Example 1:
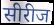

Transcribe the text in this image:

सीरीज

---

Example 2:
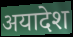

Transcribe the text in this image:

अयादेश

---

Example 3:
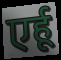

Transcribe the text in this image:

एर्हू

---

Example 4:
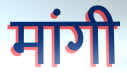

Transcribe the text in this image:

मांगी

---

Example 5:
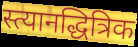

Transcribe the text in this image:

स्त्यानद्धित्रिक